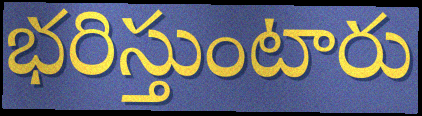
భరిస్తుంటారు